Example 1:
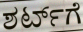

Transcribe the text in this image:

ಶರ್ಟ್‌ಗೆ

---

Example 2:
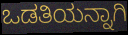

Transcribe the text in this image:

ಒಡತಿಯನ್ನಾಗಿ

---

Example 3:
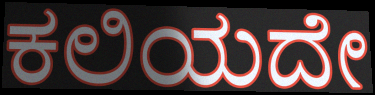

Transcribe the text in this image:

ಕಲಿಯದೇ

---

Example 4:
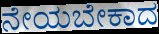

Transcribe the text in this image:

ನೇಯಬೇಕಾದ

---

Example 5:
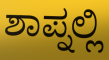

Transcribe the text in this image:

ಶಾಪ್ನಲ್ಲಿ